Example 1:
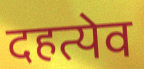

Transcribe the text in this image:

दहत्येव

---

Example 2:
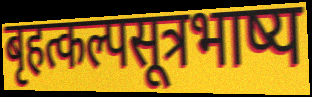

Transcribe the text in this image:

बृहत्कल्पसूत्रभाष्य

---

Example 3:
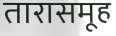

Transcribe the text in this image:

तारासमूह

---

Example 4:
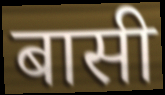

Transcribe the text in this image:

बासी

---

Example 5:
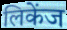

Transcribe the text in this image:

लिकेंज